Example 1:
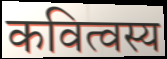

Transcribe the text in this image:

कवित्वस्य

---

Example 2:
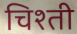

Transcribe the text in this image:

चिश्ती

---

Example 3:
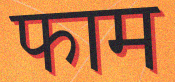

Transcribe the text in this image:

फाम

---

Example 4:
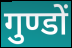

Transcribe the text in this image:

गुण्डों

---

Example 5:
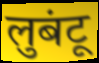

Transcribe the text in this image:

लुबंटू